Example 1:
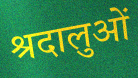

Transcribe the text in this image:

श्रदालुओं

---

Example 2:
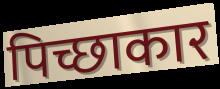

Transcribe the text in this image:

पिच्छाकार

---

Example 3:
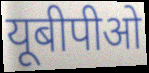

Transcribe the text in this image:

यूबीपीओ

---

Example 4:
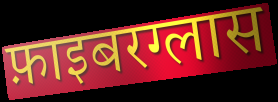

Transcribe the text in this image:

फ़ाइबरग्लास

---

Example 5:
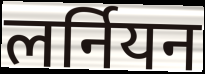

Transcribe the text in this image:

लर्नियन